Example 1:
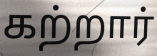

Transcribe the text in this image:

கற்றார்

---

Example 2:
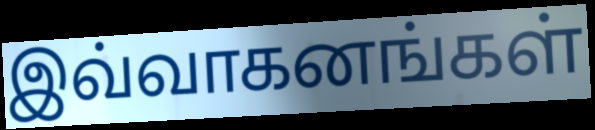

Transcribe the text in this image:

இவ்வாகனங்கள்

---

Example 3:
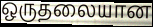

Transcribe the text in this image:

ஒருதலையான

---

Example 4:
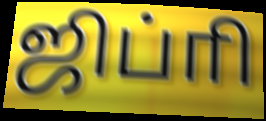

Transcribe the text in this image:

ஜிப்ரி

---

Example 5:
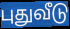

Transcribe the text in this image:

புதுவீடு